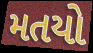
મતયો